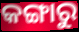
କଙ୍ଗାରୁ